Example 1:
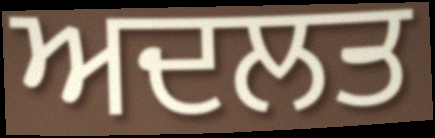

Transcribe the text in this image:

ਅਦਲਤ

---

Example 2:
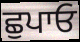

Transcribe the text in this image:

ਛੁਪਾਓ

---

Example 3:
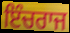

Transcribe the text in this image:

ਇੰਚਰਾਜ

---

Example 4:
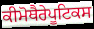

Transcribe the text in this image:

ਕੀਮੋਥੈਰੇਪੂਟਿਕਸ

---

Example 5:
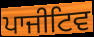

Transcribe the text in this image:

ਪਾਜੀਟਿਵ